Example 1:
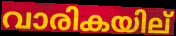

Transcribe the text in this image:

വാരികയില്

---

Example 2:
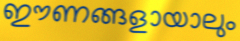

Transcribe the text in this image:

ഈണങ്ങളായാലും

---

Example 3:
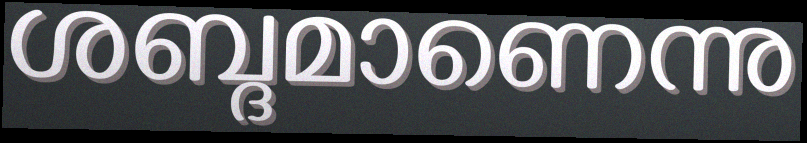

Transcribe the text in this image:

ശബ്ദമാണെന്നു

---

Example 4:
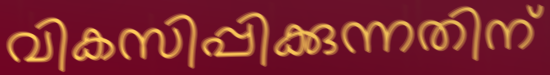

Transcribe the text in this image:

വികസിപ്പിക്കുന്നതിന്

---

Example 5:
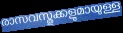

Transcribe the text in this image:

രാസവസ്തുക്കളുമായുള്ള